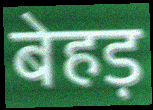
बेहड़